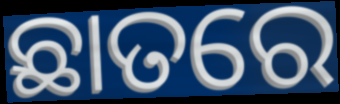
ଛାତରେ